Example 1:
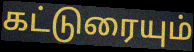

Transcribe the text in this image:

கட்டுரையும்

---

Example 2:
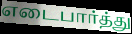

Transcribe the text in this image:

எடைபார்த்து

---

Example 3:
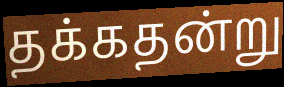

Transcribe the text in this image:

தக்கதன்று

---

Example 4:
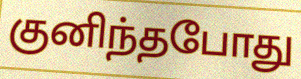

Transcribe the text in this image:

குனிந்தபோது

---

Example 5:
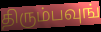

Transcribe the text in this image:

திரும்பவுங்